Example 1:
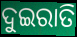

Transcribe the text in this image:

ଦୁଇରାତି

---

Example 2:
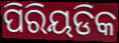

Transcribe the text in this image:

ପିରିୟଡିକ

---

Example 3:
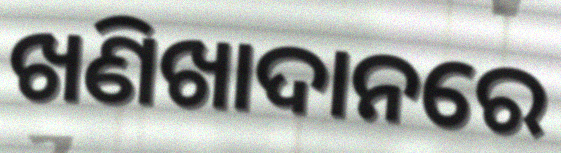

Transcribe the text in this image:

ଖଣିଖାଦାନରେ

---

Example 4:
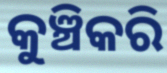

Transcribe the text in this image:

କୁଞ୍ଚିକରି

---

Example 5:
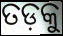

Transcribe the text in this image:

ତଡ଼କୁ